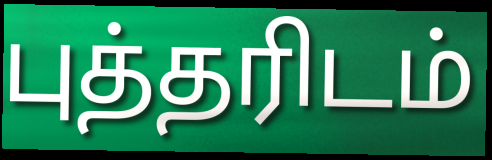
புத்தரிடம்